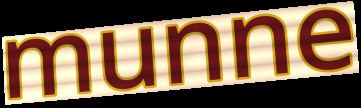
munne